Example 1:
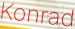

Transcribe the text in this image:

Konrad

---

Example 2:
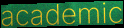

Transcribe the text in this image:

academic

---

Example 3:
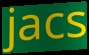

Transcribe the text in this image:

jacs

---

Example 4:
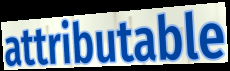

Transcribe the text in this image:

attributable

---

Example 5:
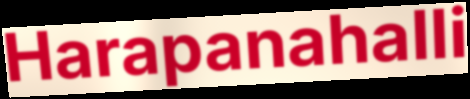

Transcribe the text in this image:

Harapanahalli